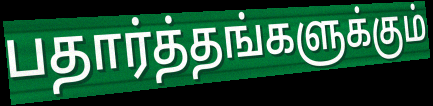
பதார்த்தங்களுக்கும்